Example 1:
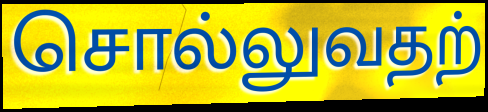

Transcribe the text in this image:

சொல்லுவதற்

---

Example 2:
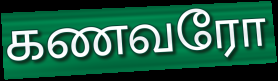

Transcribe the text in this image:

கணவரோ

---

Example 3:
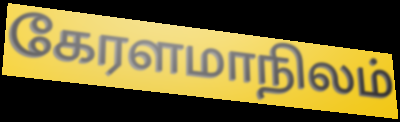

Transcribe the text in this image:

கேரளமாநிலம்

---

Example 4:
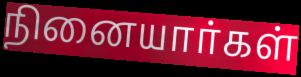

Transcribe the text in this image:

நினையார்கள்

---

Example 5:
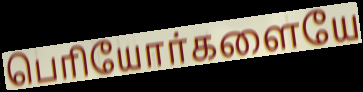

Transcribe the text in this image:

பெரியோர்களையே